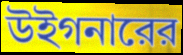
উইগনারের